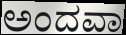
ಅಂದವಾ